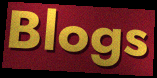
Blogs